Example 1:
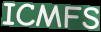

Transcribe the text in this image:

ICMFS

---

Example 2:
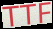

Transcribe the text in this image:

TTF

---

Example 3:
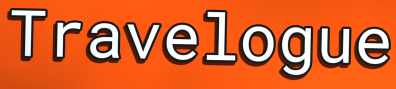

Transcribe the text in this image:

Travelogue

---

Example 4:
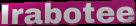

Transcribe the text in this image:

Irabotee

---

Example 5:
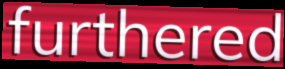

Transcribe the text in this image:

furthered